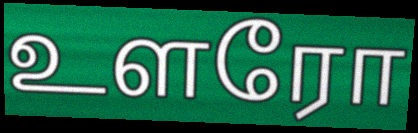
உளரோ